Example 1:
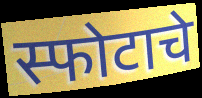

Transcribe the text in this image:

स्फोटाचे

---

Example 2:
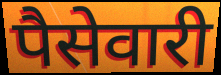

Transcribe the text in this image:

पैसेवारी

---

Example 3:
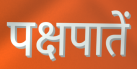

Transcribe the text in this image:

पक्षपातें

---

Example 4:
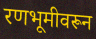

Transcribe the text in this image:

रणभूमीवरून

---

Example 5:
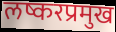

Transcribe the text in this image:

लष्करप्रमुख